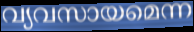
വ്യവസായമെന്ന